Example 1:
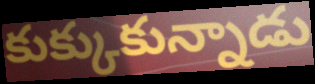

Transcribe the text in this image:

కుక్కుకున్నాడు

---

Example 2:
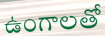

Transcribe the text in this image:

ఉంగాలతో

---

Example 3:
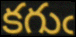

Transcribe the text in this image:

కగుఁ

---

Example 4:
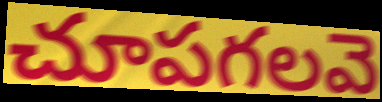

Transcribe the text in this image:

చూపగలవె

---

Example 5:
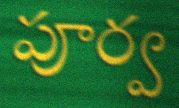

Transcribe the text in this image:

పూర్వ